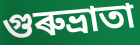
গুৰুভ্ৰাতা